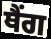
ਥੈਂਗ